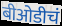
बीओडीचं